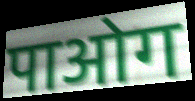
पाओग